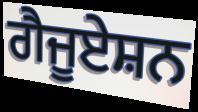
ਗੈਜੂਏਸ਼ਨ